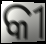
କୀ